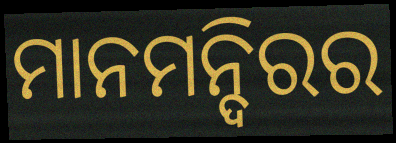
ମାନମନ୍ଦିରର